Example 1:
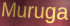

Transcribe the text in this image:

Muruga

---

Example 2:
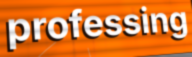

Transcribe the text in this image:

professing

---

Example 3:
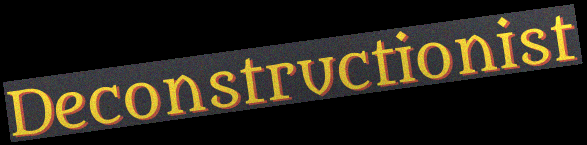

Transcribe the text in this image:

Deconstructionist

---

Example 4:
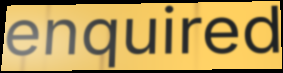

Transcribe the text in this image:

enquired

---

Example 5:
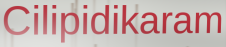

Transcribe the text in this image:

Cilipidikaram